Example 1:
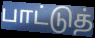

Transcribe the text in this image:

பாட்டுத்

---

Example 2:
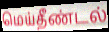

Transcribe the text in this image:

மெய்தீண்டல்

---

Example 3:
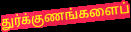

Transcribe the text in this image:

துர்க்குணங்களைப்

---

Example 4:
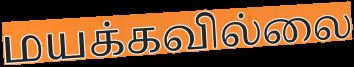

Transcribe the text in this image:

மயக்கவில்லை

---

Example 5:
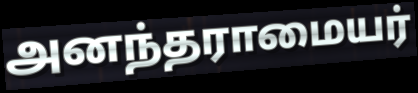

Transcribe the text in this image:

அனந்தராமையர்